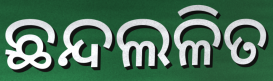
ଛନ୍ଦଲଳିତ